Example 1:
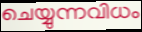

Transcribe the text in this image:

ചെയ്യുന്നവിധം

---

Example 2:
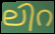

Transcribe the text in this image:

ലിറ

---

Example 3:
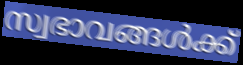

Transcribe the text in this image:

സ്വഭാവങ്ങൾക്ക്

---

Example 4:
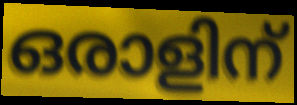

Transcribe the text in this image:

ഒരാളിന്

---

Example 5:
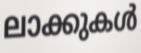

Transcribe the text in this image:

ലാക്കുകൾ